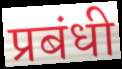
प्रबंधी